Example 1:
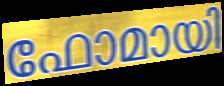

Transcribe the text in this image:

ഫോമായി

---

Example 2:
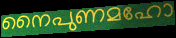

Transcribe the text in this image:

നൈപുണമഹോ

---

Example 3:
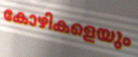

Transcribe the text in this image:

കോഴികളെയും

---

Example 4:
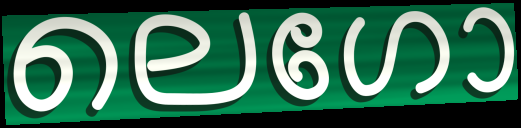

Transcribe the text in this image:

ലെഗോ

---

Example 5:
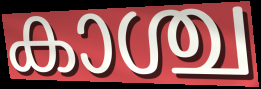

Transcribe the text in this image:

കാശ്ച